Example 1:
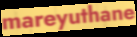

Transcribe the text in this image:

mareyuthane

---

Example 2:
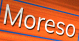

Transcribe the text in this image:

Moreso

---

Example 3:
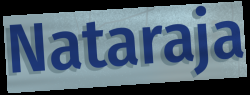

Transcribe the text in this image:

Nataraja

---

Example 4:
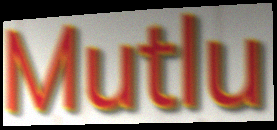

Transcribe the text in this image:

Mutlu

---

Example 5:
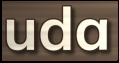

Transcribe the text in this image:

uda